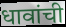
धावांची